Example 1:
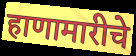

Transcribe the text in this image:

हाणामारीचे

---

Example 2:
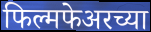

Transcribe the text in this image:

फिल्मफेअरच्या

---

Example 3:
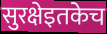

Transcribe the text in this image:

सुरक्षेइतकेच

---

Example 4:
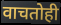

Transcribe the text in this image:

वाचतोही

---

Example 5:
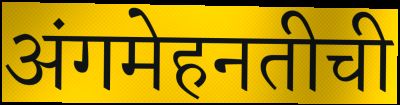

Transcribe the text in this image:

अंगमेहनतीची